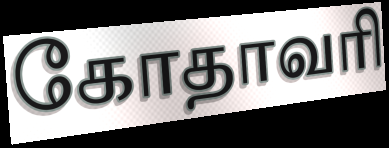
கோதாவரி